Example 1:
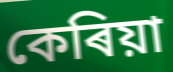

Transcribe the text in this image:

কেৰিয়া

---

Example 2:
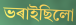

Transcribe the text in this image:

ভৰাইছিলো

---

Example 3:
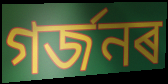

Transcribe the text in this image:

গৰ্জনৰ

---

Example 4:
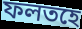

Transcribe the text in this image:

ফলতহে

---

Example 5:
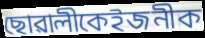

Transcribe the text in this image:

ছোৱালীকেইজনীক